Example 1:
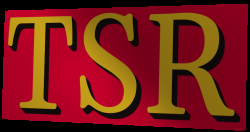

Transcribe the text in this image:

TSR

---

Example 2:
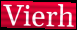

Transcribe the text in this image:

Vierh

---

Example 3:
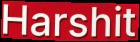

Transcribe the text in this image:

Harshit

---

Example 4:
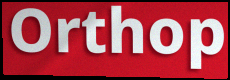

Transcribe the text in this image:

Orthop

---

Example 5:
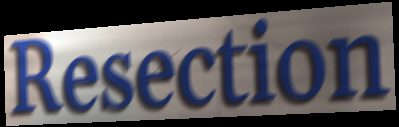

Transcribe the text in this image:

Resection